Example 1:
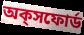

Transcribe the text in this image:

অক্‌সফোর্ড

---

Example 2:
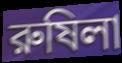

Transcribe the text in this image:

রুষিলা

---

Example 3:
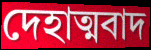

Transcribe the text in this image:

দেহাত্মবাদ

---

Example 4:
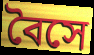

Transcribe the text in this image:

বৈসে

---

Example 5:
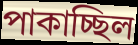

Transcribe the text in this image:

পাকাচ্ছিল